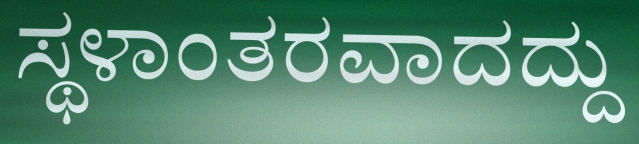
ಸ್ಥಳಾಂತರವಾದದ್ದು